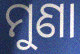
ମୁଣା